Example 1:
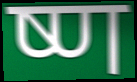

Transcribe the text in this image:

ष्ण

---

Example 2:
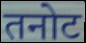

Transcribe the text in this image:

तनोट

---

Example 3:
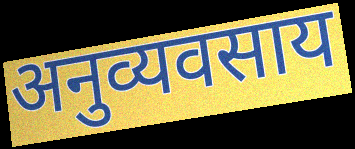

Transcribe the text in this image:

अनुव्यवसाय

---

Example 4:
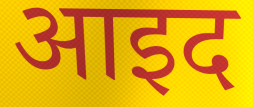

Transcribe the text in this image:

आइद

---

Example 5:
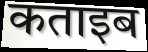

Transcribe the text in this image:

कताइब